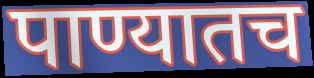
पाण्यातच